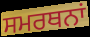
ਸਮਰਥਨਾਂ